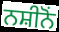
ਨਸ਼ੀਨੋਂ